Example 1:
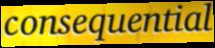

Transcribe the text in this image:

consequential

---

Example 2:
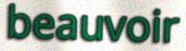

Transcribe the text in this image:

beauvoir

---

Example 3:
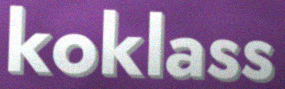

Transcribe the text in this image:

koklass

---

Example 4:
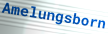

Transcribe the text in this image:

Amelungsborn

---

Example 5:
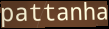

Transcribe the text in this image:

pattanha